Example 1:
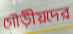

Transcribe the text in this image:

গৌড়ীয়দের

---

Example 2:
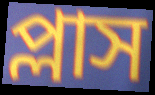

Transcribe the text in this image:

প্লাস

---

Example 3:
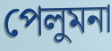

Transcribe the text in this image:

পেলুমনা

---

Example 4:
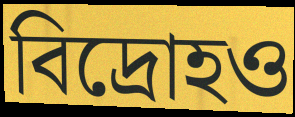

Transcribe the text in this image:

বিদ্রোহও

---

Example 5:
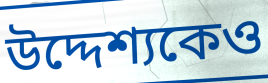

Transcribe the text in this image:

উদ্দেশ্যকেও